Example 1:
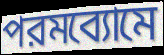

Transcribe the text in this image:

পরমব্যোমে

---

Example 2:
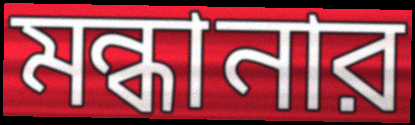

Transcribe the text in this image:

মন্ধানার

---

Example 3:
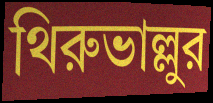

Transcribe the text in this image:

থিরুভাল্লুর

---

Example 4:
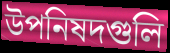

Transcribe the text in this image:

উপনিষদগুলি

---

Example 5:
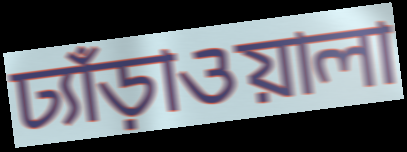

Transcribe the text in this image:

ঢ্যাঁড়াওয়ালা